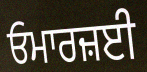
ਓਮਾਰਜ਼ਈ